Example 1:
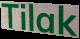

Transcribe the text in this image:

Tilak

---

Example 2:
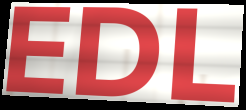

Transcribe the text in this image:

EDL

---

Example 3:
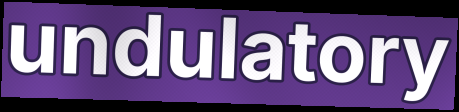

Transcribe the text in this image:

undulatory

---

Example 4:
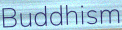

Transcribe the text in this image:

Buddhism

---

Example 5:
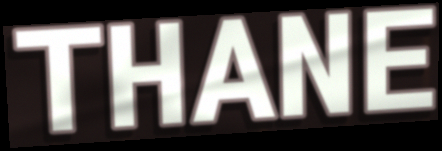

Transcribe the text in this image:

THANE